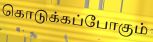
கொடுக்கப்போகும்